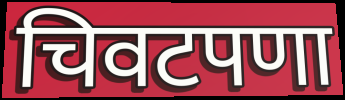
चिवटपणा